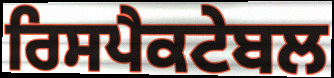
ਰਿਸਪੈਕਟੇਬਲ